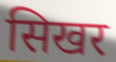
सिखर